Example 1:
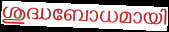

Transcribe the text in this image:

ശുദ്ധബോധമായി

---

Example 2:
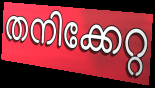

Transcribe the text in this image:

തനിക്കേറ്റ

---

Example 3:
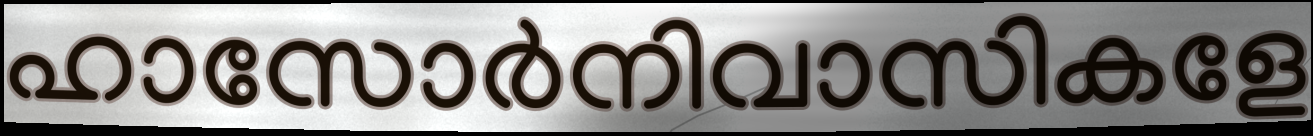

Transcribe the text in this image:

ഹാസോർനിവാസികളേ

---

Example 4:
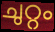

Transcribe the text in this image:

ചുറ്റം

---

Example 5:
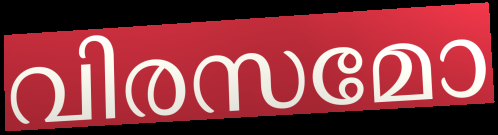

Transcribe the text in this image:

വിരസമോ